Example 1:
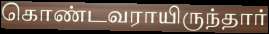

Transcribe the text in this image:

கொண்டவராயிருந்தார்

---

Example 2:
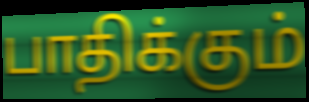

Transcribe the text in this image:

பாதிக்கும்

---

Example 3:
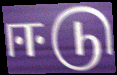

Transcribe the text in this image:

ஈடு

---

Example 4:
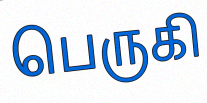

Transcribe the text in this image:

பெருகி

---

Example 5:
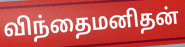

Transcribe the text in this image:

விந்தைமனிதன்